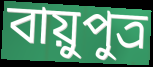
বায়ুপুত্র